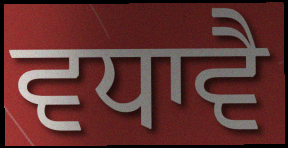
ਵਧਾਵੈ